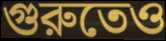
গুরুতেও